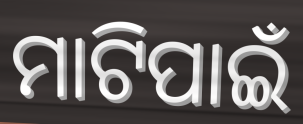
ମାଟିପାଇଁ